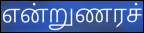
என்றுணரச்